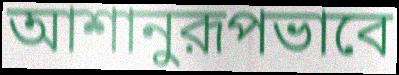
আশানুরূপভাবে